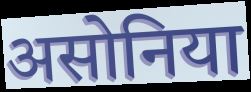
असोनिया